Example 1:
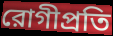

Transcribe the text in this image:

রোগীপ্রতি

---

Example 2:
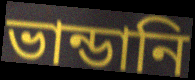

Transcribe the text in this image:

ভান্ডানি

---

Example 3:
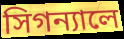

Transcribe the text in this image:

সিগন্যালে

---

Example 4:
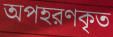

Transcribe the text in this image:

অপহরণকৃত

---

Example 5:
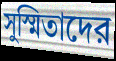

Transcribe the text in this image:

সুস্মিতাদের